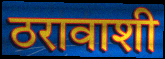
ठरावाशी